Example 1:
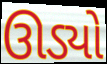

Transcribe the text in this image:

ઊડ્યો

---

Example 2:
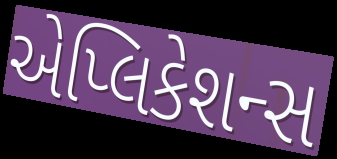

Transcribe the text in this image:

એપ્લિકેશન્સ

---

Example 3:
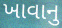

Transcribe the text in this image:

ખાવાનુ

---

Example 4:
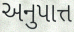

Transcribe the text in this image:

અનુપાત્ત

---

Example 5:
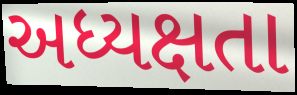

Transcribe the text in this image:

અધ્યક્ષતા